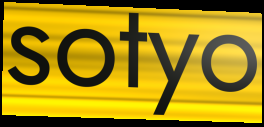
sotyo